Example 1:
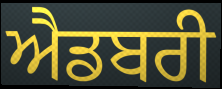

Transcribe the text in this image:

ਐਡਬਰੀ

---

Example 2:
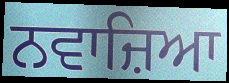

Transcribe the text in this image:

ਨਵਾਜ਼ਿਆ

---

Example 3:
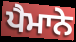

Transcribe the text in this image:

ਪੈਮਾਨੇ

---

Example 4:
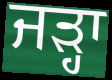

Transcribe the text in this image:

ਜੜ੍ਹਾ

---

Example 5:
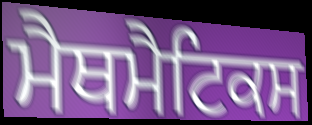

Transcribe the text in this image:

ਮੈਥਮੈਟਿਕਸ